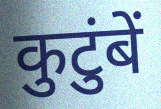
कुटुंबें